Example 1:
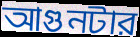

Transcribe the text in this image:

আগুনটার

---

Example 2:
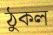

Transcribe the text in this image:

ঠুকল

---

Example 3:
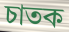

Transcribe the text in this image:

চাতক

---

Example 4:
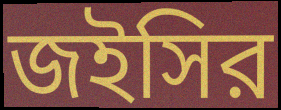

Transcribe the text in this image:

জইসির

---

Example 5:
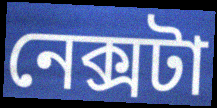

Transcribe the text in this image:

নেক্সটা